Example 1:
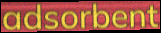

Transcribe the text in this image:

adsorbent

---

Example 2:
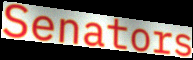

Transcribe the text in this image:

Senators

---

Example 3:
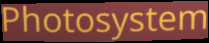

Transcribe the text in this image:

Photosystem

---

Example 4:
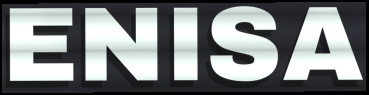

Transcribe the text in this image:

ENISA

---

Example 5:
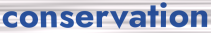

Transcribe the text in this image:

conservation